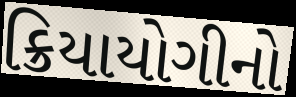
ક્રિયાયોગીનો